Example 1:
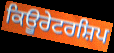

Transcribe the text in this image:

ਕਿਊਰੇਟਰਸ਼ਿਪ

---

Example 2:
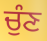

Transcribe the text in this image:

ਚੁੰਣ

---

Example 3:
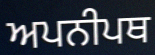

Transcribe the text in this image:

ਅਪਨੀਪਥ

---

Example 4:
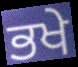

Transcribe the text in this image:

ਭਖੇ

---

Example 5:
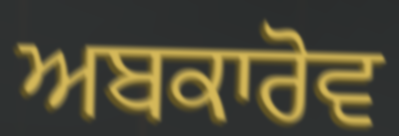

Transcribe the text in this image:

ਅਬਕਾਰੋਵ